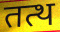
तत्थ